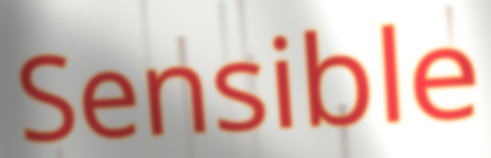
Sensible